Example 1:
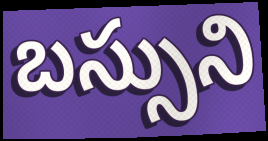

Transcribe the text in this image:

బస్సుని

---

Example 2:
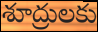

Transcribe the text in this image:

శూద్రులకు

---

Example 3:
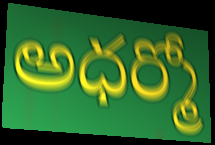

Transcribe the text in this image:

అధర్మో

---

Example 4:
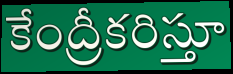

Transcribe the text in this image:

కేంద్రీకరిస్తూ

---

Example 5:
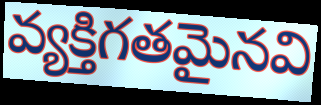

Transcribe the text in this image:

వ్యక్తిగతమైనవి